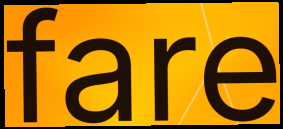
fare